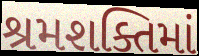
શ્રમશક્તિમાં